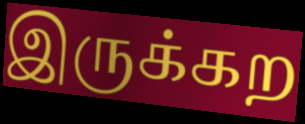
இருக்கற